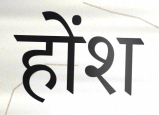
होंश